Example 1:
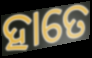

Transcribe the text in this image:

ହାତେ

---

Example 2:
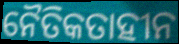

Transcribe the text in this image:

ନୈତିକତାହୀନ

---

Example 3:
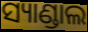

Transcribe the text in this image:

ସ୍ୟାଣ୍ଡାଲ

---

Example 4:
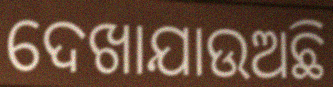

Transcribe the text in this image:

ଦେଖାଯାଉଅଛି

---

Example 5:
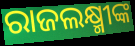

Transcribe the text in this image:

ରାଜଲକ୍ଷ୍ମୀଙ୍କ